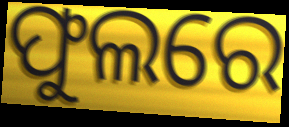
ଫୁଲରେ